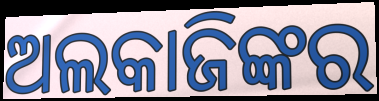
ଅଲକାଜିଙ୍କର